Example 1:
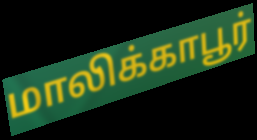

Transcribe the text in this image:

மாலிக்காபூர்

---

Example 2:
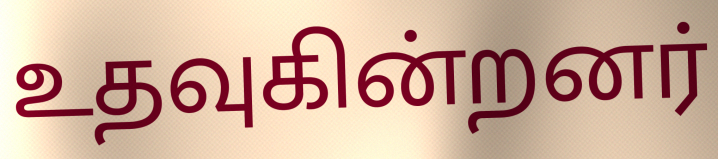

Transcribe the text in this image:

உதவுகின்றனர்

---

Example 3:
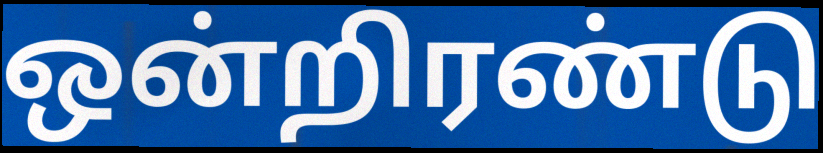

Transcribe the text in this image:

ஒன்றிரண்டு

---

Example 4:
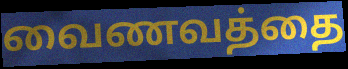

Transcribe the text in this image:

வைணவத்தை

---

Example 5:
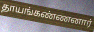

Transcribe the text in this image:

தாயங்கண்ணனார்